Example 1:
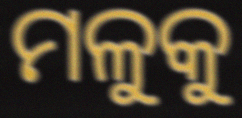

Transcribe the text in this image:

ମଳୁକୁ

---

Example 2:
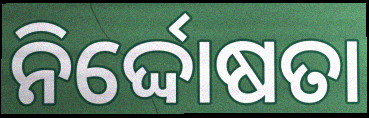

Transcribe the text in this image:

ନିର୍ଦ୍ଦୋଷତା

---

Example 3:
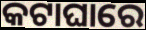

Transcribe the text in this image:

କଟାଘାରେ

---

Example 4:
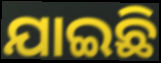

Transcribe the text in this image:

ଯାଇଛି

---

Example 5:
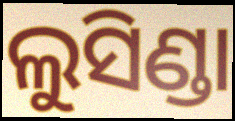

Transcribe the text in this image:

ଲୁସିଣ୍ଡା